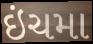
ઇંચમા